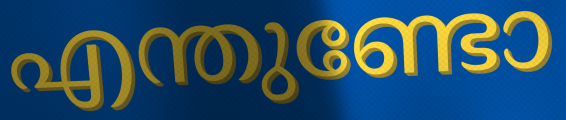
എന്തുണ്ടോ